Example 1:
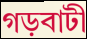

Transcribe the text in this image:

গড়বাটী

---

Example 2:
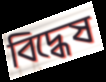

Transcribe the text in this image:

বিদ্ধেষ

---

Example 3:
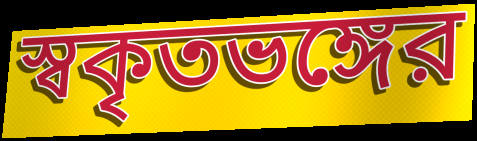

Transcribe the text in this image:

স্বকৃতভঙ্গের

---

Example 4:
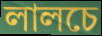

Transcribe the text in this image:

লালচে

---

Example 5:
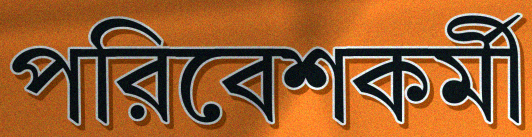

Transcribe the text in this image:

পরিবেশকর্মী